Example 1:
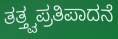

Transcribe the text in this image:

ತತ್ತ್ವಪ್ರತಿಪಾದನೆ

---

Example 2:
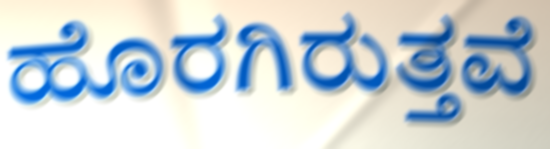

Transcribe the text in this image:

ಹೊರಗಿರುತ್ತವೆ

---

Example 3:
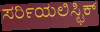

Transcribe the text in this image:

ಸರ್ರಿಯಲಿಸ್ಟಿಕ್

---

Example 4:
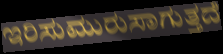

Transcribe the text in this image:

ಇರಿಸುಮುರುಸಾಗುತ್ತದೆ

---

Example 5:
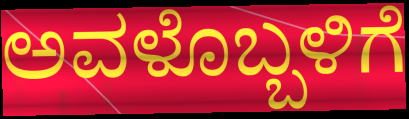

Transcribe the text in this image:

ಅವಳೊಬ್ಬಳಿಗೆ